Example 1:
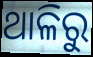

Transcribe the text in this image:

ଥାଳିରୁ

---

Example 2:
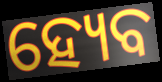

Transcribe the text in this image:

ହ୍ୟେବ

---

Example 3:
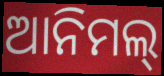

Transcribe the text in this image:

ଆନିମଲ୍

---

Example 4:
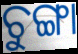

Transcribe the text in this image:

ଚୁଙ୍ଗା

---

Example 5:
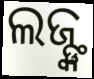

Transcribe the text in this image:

ଲଜ୍ଙ୍କ